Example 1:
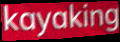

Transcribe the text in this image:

kayaking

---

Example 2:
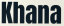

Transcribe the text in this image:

Khana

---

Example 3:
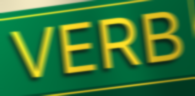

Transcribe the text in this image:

VERB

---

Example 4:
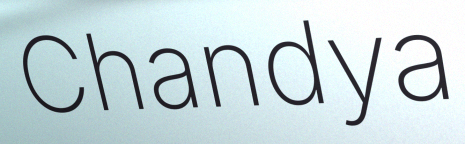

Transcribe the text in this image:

Chandya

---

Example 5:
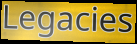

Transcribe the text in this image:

Legacies